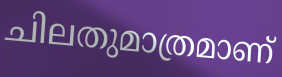
ചിലതുമാത്രമാണ്